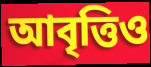
আবৃত্তিও